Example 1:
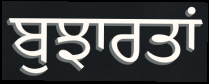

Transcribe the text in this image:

ਬੁਝਾਰਤਾਂ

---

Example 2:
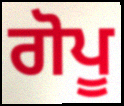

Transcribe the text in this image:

ਗੋਪੂ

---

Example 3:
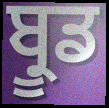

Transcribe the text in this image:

ਬ੍ਰੂਡ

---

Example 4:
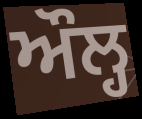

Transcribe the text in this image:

ਔਲ੍ਹ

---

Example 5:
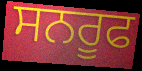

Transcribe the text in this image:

ਸਨਰੂਫ